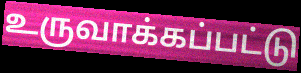
உருவாக்கப்பட்டு